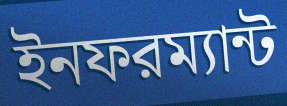
ইনফরম্যান্ট